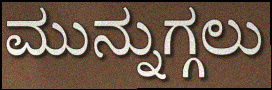
ಮುನ್ನುಗ್ಗಲು